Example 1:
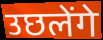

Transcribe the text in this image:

उछलेंगे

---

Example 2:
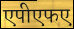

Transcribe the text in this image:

एपीएफए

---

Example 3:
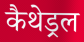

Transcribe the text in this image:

कैथेड्रल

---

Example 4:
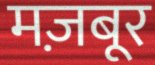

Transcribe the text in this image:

मज़बूर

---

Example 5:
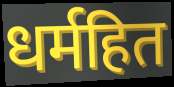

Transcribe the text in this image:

धर्महित